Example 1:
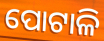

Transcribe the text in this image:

ପୋଟାଳି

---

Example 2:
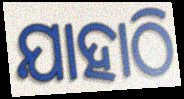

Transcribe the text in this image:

ଯାହାଠି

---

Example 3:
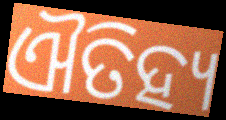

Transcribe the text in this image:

ଐତିହ୍ଯ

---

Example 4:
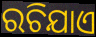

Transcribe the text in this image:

ରଚିଯାଏ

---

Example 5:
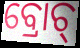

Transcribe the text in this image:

ବ୍ରୋଚ୍